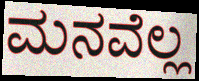
ಮನವೆಲ್ಲ